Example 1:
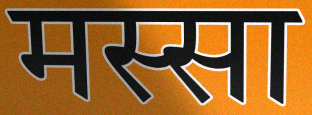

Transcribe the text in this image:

मस्‍सा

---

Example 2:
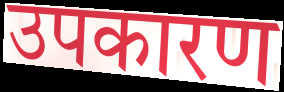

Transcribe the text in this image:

उपकारण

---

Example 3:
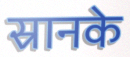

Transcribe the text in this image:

स्रानके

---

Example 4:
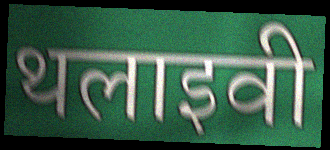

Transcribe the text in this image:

थलाइवी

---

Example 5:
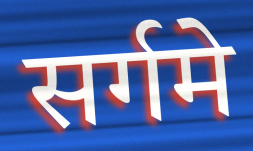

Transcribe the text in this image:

सर्गमे